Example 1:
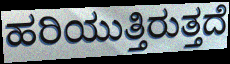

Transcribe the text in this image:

ಹರಿಯುತ್ತಿರುತ್ತದೆ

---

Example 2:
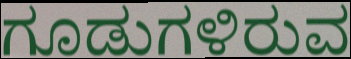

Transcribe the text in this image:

ಗೂಡುಗಳಿರುವ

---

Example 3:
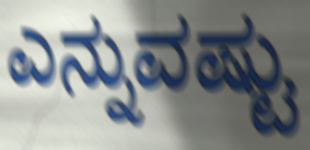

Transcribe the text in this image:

ಎನ್ನುವಷ್ಟು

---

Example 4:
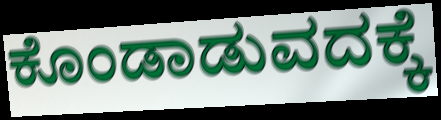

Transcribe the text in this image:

ಕೊಂಡಾಡುವದಕ್ಕೆ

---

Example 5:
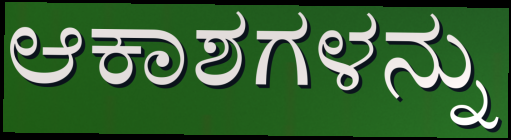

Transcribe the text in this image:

ಆಕಾಶಗಳನ್ನು